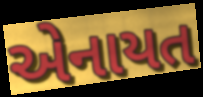
એનાયત